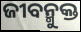
ଜୀବନ୍ମୁକ୍ତ